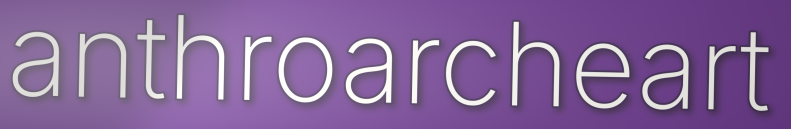
anthroarcheart